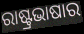
ରାଷ୍ଟ୍ରଭାଷାର